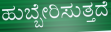
ಹುಬ್ಬೇರಿಸುತ್ತದೆ